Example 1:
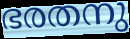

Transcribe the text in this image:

ഭരതനു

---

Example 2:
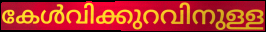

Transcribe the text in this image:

കേൾവിക്കുറവിനുള്ള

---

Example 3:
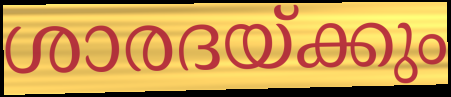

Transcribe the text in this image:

ശാരദയ്ക്കും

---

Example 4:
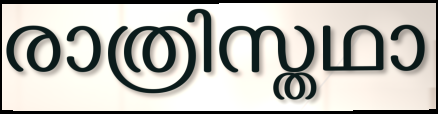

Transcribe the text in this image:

രാത്രിസ്തഥാ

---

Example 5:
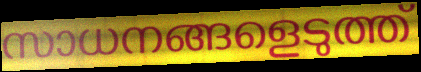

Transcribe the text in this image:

സാധനങ്ങളെടുത്ത്